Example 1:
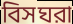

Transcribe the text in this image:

বিসঘরা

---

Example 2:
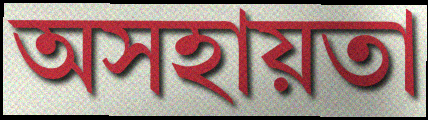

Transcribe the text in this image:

অসহায়তা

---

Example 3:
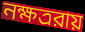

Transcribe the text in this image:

নক্ষত্ররায়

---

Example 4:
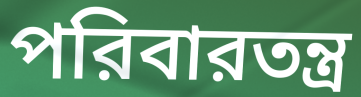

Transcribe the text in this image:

পরিবারতন্ত্র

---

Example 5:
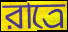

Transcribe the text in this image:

রাত্রে